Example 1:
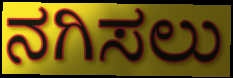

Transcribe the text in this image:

ನಗಿಸಲು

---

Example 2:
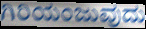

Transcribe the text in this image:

ಗಿರಿಯಂಜುವುದು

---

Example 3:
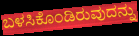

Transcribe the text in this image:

ಬಳಸಿಕೊಂಡಿರುವುದನ್ನು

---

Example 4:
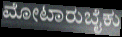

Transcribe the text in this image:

ಮೋಟಾರುಬೈಕು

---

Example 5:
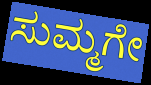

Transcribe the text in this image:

ಸುಮ್ಮಗೇ